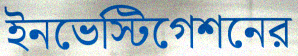
ইনভেস্টিগেশনের